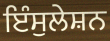
ਇੰਸੁਲੇਸ਼ਨ